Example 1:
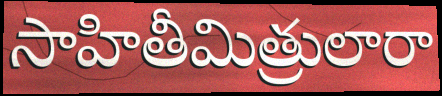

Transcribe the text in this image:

సాహితీమిత్రులారా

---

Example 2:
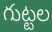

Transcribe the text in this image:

గుట్టల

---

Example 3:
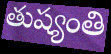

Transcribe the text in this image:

తుష్యంతి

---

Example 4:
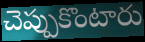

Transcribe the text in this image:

చెప్పుకొంటారు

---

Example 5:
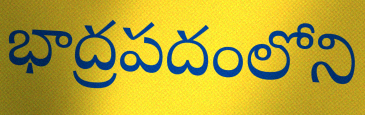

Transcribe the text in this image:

భాద్రపదంలోని